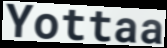
Yottaa